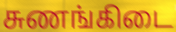
சுணங்கிடை